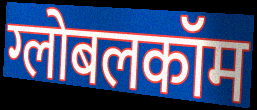
ग्लोबलकॉम